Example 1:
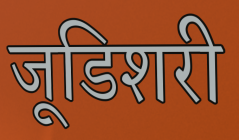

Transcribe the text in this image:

जूडिशरी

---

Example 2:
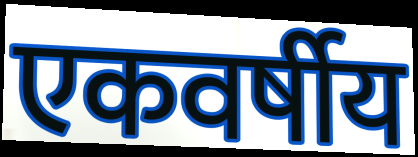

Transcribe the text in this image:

एकवर्षीय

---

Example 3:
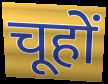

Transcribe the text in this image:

चूहों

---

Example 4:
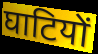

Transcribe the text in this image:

घाटियों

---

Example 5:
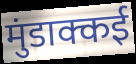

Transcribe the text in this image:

मुंडाक्कई